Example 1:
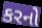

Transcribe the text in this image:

કરનો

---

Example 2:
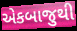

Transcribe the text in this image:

એકબાજુથી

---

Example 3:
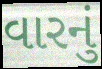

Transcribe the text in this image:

વારનું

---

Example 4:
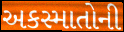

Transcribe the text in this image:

અકસ્માતોની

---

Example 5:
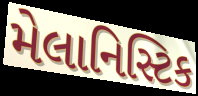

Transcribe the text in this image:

મેલાનિસ્ટિક